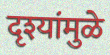
दृश्यांमुळे